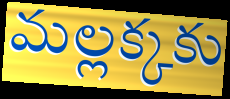
మల్లక్కకు